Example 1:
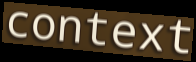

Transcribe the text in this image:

context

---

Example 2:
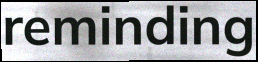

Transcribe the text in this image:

reminding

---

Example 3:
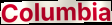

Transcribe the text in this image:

Columbia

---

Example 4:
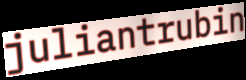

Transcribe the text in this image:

juliantrubin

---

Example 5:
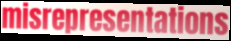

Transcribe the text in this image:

misrepresentations